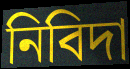
নিবিদা